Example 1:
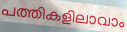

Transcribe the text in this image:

പത്തികളിലാവാം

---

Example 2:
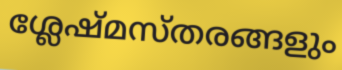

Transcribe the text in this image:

ശ്ലേഷ്മസ്തരങ്ങളും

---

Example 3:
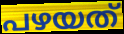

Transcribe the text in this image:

പഴയത്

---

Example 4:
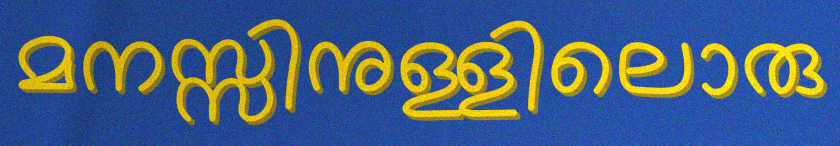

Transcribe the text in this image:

മനസ്സിനുള്ളിലൊരു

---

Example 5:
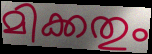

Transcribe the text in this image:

മിക്കതും